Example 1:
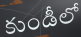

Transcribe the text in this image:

కుండీలో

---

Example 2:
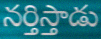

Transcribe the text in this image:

నర్తిస్తాడు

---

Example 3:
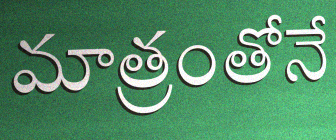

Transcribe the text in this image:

మాత్రంతోనే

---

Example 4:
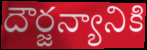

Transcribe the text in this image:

దౌర్జన్యానికి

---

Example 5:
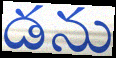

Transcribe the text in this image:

డను